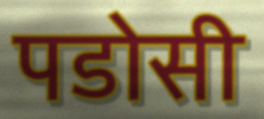
पडोसी